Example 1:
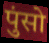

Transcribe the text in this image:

पुंसो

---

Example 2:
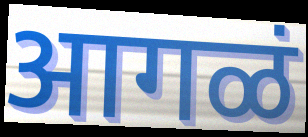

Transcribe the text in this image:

आगळं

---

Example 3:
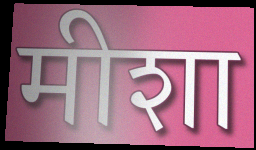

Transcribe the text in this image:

मीशा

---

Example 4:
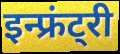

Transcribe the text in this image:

इन्फ्रंट्री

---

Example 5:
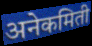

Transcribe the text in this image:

अनेकमिती